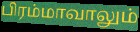
பிரம்மாவாலும்